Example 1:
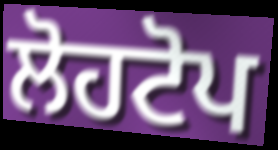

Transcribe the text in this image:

ਲੋਹਟੋਪ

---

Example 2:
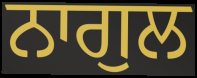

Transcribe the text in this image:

ਨਾਗੁਲ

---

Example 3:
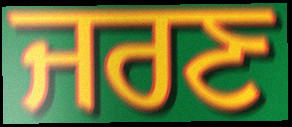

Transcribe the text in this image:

ਜਰਣ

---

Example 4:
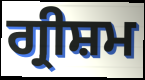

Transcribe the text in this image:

ਗ੍ਰੀਸ਼ਮ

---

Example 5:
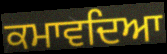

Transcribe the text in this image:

ਕਮਾਵਦਿਆ